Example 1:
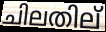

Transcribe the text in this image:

ചിലതില്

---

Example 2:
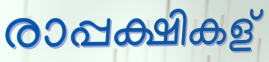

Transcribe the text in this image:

രാപ്പക്ഷികള്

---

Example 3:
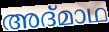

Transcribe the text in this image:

അദ്മാഥ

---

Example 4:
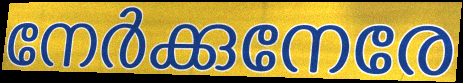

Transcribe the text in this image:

നേർക്കുനേരേ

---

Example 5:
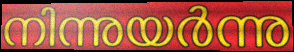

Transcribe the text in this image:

നിന്നുയർന്നു